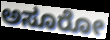
ಅಸೂರೋ